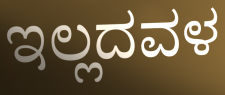
ಇಲ್ಲದವಳ